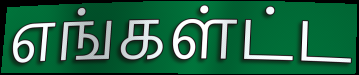
எங்கள்ட்ட